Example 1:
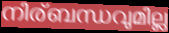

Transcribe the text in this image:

നിര്ബന്ധവുമില്ല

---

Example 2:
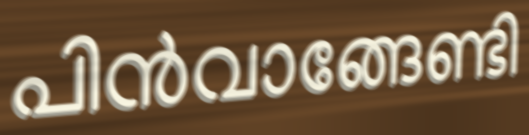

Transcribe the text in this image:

പിൻവാങ്ങേണ്ടി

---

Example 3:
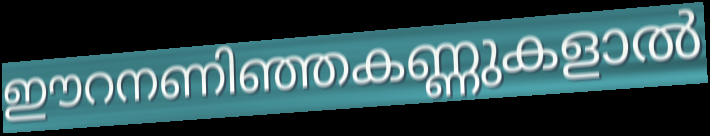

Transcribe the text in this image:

ഈറനണിഞ്ഞകണ്ണുകളാൽ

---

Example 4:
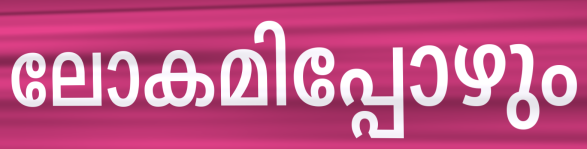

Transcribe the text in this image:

ലോകമിപ്പോഴും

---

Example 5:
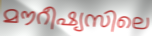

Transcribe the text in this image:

മൗറീഷ്യസിലെ